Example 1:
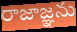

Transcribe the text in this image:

రాజాజ్ఞను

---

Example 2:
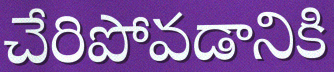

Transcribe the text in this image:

చేరిపోవడానికి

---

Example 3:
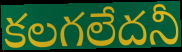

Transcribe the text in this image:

కలగలేదనీ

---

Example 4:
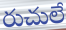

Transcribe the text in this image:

రుచులే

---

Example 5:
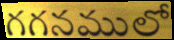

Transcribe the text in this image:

గగనములో